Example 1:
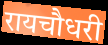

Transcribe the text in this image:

रायचौधरी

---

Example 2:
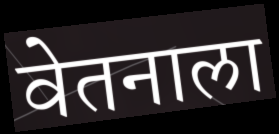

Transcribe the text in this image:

वेतनाला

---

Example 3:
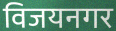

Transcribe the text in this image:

विजयनगर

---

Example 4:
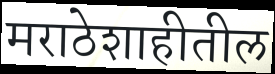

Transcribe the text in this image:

मराठेशाहीतील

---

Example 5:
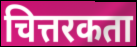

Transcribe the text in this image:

चित्तरकता